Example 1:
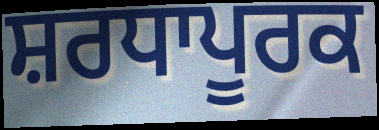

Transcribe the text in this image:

ਸ਼ਰਧਾਪੂਰਕ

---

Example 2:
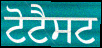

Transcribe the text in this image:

ਟੋਟੈਸਟ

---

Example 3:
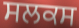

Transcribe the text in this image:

ਸਲਕਸ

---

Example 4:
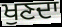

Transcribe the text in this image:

ਖੁਣਦਾ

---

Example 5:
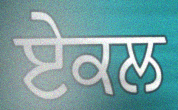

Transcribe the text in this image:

ਏਕਲ